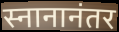
स्नानानंतर